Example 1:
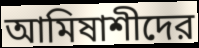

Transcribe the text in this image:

আমিষাশীদের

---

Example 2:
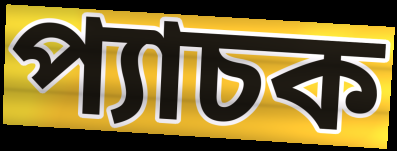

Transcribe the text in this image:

প্যাচক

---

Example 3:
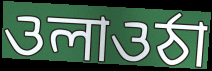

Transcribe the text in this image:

ওলাওঠা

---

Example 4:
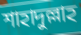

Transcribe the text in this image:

শাহাদুল্লাহ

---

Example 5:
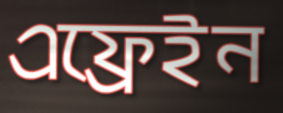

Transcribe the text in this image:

এফ্রেইন